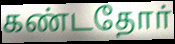
கண்டதோர்